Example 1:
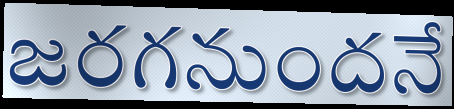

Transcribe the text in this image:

జరగనుందనే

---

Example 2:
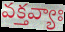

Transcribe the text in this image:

వక్తవ్యాః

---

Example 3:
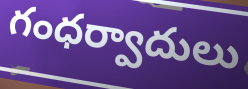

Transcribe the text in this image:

గంధర్వాదులు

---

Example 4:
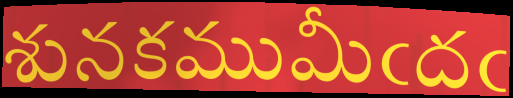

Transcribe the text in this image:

శునకముమీఁదఁ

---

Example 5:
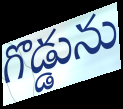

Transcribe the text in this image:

గొడ్డును